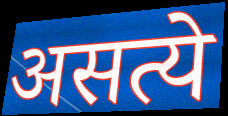
असत्ये